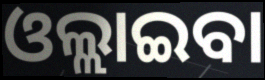
ଓଲ୍ଲାଇବା